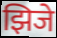
झिजे